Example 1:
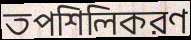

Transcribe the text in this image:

তপশিলিকরণ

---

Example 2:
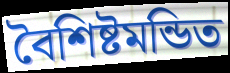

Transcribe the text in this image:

বৈশিষ্টমন্ডিত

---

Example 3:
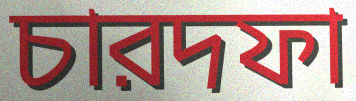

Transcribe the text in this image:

চারদফা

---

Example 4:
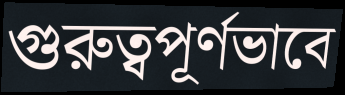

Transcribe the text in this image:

গুরুত্বপূর্ণভাবে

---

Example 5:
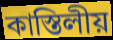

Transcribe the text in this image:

কাস্তিলীয়